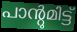
പാന്റുമിട്ട്